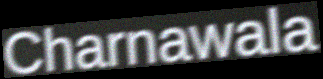
Charnawala